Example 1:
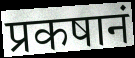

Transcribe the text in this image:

प्रकषानं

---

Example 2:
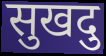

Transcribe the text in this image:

सुखदु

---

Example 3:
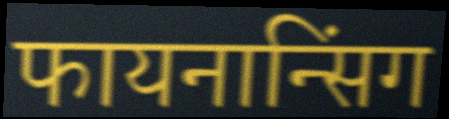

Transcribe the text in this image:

फायनान्सिंग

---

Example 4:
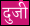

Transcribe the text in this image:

दुजी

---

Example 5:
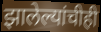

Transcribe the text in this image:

झालेल्यांचीही